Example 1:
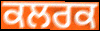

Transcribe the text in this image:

ਕਲਰਕ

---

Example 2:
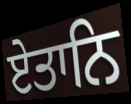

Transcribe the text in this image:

ਏਤਾਨਿ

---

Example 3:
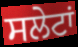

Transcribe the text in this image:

ਸਲੇਟਾਂ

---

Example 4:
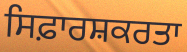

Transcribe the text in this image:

ਸਿਫ਼ਾਰਸ਼ਕਰਤਾ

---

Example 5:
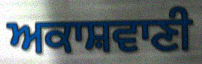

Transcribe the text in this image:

ਅਕਾਸ਼ਵਾਣੀ